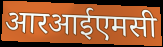
आरआईएमसी